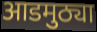
आडमुठ्या